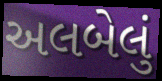
અલબેલું